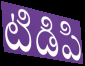
టిడిపి